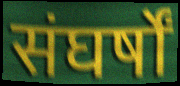
संघर्षों